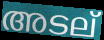
അടല്